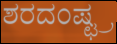
ಶರದಂಷ್ಟ್ರ